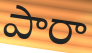
పారా